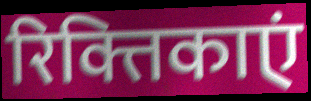
रिक्तिकाएं